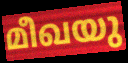
മീഖയു